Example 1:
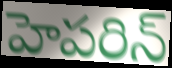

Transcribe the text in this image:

హెపరిన్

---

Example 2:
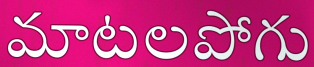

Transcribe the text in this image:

మాటలపోగు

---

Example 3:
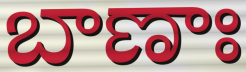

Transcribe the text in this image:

బాణాః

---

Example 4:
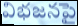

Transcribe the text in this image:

విభజనపై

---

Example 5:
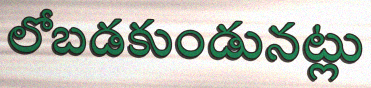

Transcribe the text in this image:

లోబడకుండునట్లు